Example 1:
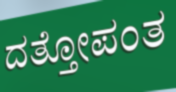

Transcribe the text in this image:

ದತ್ತೋಪಂತ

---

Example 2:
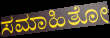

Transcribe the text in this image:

ಸಮಾಹಿತೋ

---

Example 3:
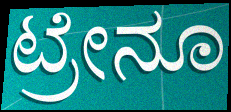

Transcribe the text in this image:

ಟ್ರೇನೂ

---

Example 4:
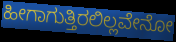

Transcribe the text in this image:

ಹೀಗಾಗುತ್ತಿರಲಿಲ್ಲವೇನೋ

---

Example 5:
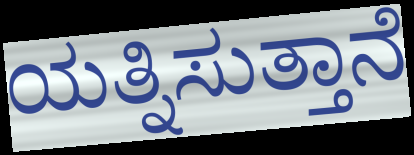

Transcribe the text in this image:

ಯತ್ನಿಸುತ್ತಾನೆ